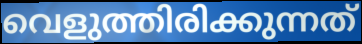
വെളുത്തിരിക്കുന്നത്